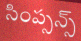
సింప్సన్స్